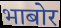
भाबोर